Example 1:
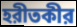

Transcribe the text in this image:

হরীতকীর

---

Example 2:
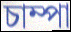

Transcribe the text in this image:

চাম্পা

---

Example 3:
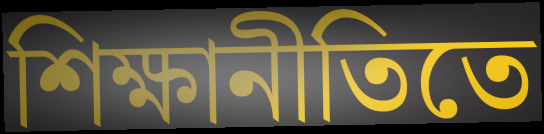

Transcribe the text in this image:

শিক্ষানীতিতে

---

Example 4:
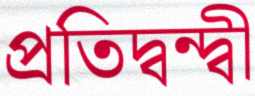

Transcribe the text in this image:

প্রতিদ্বন্দ্বী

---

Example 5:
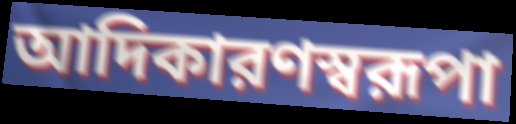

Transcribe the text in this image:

আদিকারণস্বরূপা